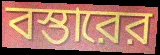
বস্তারের